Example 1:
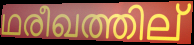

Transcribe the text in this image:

ഥരീഖത്തില്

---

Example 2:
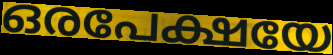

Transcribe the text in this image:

ഒരപേക്ഷയേ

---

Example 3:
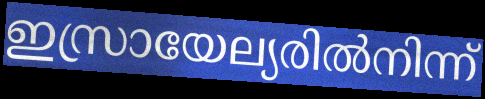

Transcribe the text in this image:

ഇസ്രായേല്യരിൽനിന്ന്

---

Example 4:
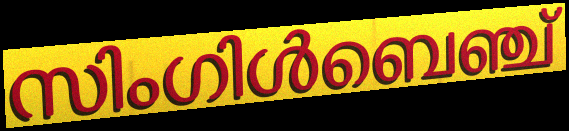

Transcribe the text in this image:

സിംഗിൾബെഞ്ച്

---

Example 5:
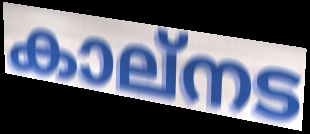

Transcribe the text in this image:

കാല്നട